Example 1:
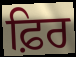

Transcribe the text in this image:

ਫ਼ਿਰ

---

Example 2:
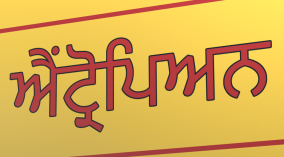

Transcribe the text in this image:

ਐਂਟ੍ਰੋਪਿਅਨ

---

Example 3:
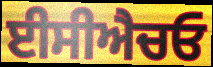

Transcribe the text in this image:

ਈਸੀਐਚਓ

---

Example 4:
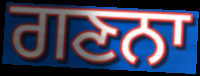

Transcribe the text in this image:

ਗਣਨਾ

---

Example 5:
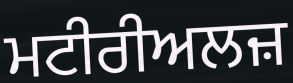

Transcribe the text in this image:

ਮਟੀਰੀਅਲਜ਼